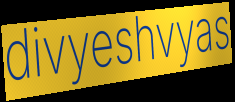
divyeshvyas